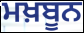
ਮਖ਼ਬੂਨ